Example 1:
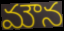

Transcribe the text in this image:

మౌన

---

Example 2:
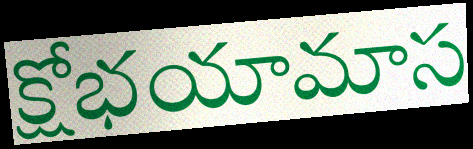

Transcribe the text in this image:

క్షోభయామాస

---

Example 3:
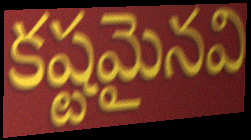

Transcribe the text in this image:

కష్టమైనవి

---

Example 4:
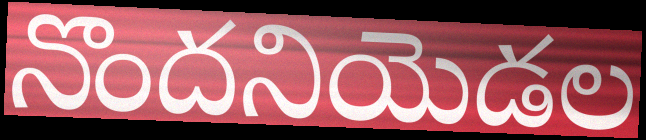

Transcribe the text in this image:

నొందనియెడల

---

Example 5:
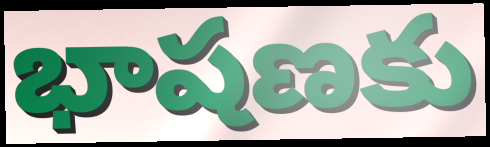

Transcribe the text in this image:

భాషణకు